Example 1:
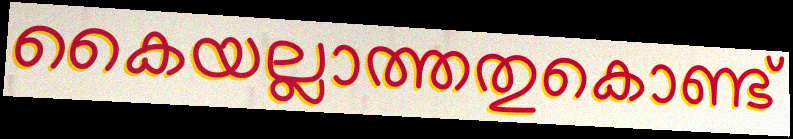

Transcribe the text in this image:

കൈയല്ലാത്തതുകൊണ്ട്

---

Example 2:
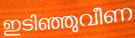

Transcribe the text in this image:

ഇടിഞ്ഞുവീണ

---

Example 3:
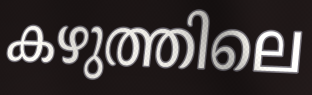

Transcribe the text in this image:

കഴുത്തിലെ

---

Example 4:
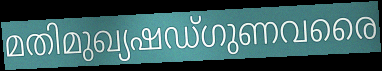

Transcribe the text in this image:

മതിമുഖ്യഷഡ്ഗുണവരൈ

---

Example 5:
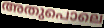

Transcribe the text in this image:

അതുപൊലെ